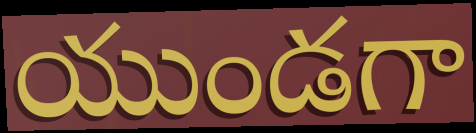
యుండగా